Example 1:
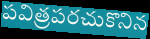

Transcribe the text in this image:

పవిత్రపరచుకొనిన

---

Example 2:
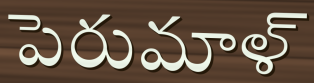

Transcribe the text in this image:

పెరుమాళ్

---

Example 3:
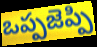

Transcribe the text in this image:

ఒప్పజెప్పి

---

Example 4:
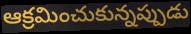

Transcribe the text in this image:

ఆక్రమించుకున్నప్పుడు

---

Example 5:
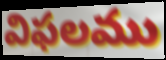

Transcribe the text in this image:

విఫలము